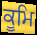
ਕੂਮਿ